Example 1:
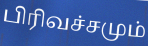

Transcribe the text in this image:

பிரிவச்சமும்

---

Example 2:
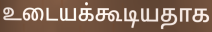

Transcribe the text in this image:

உடையக்கூடியதாக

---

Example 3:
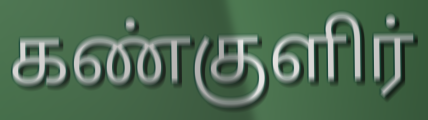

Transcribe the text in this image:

கண்குளிர்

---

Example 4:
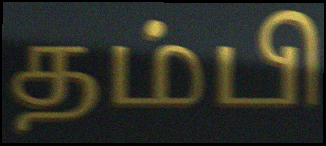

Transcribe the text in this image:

தம்பி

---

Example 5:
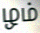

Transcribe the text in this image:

ழம்